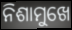
ନିଶାମୁଖେ